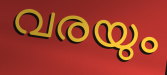
വരയും